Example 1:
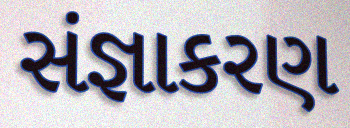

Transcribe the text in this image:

સંજ્ઞાકરણ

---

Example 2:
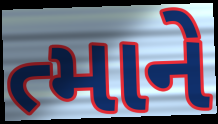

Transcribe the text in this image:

ત્માને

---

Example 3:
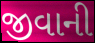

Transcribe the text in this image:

જીવાની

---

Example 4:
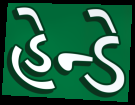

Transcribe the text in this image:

હેન્ડે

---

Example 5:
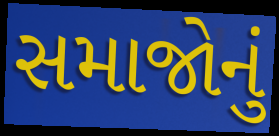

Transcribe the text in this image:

સમાજોનું